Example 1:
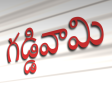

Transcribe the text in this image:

గడ్డివామి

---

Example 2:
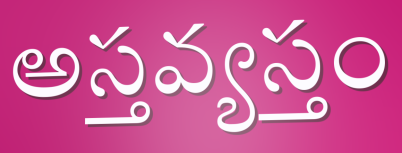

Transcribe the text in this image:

అస్తవ్యస్తం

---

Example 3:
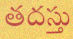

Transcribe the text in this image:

తదస్తు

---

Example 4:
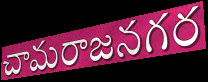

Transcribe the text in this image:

చామరాజనగర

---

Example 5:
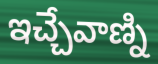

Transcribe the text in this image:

ఇచ్చేవాణ్ని